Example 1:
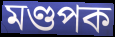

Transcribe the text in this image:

মণ্ডপক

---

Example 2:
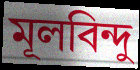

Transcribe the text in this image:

মূলবিন্দু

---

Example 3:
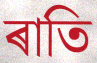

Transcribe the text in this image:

ৰাতি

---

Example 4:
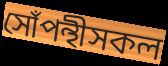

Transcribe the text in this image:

সোঁপন্থীসকল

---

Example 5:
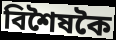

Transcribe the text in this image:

বিশৈষকৈ